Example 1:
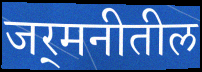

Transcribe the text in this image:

जर्मनीतील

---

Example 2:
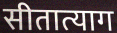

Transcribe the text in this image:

सीतात्याग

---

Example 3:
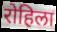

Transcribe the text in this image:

रोहिला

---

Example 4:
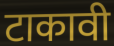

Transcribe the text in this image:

टाकावी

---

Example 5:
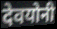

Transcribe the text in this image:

देवयोनी